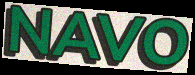
NAVO